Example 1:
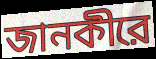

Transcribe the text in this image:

জানকীরে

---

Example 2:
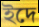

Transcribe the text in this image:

ইদে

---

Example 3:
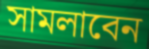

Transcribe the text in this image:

সামলাবেন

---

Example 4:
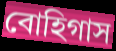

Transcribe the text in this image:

বোহিগাস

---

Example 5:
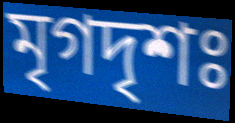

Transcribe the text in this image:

মৃগদৃশঃ